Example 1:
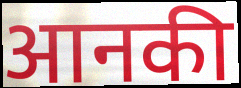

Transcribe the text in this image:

आनकी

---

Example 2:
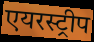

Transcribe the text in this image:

एयरस्ट्रीप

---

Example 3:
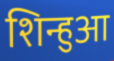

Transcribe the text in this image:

शिन्‍हुआ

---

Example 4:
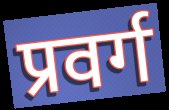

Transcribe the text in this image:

प्रवर्ग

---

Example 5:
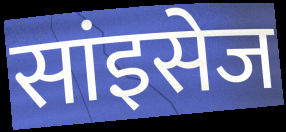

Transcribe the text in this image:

सांइसेज